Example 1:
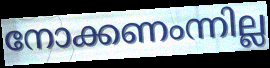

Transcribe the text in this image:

നോക്കണംന്നില്ല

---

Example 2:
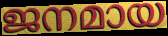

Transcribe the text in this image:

ജനമായ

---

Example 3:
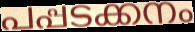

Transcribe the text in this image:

പപ്പടക്കനം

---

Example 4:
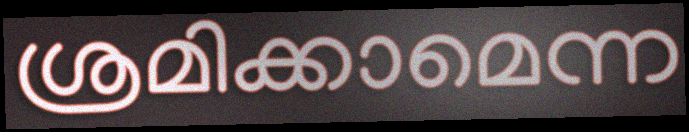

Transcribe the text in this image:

ശ്രമിക്കാമെന്ന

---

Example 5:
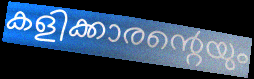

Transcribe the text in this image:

കളിക്കാരന്റെയും